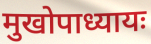
मुखोपाध्यायः